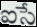
ఐసే